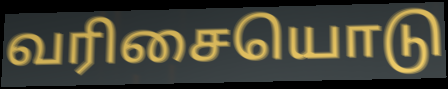
வரிசையொடு